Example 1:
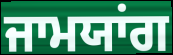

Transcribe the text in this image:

ਜਾਮਯਾਂਗ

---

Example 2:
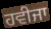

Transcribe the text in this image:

ਹਵੀਜਾ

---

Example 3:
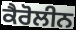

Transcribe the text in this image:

ਕੈਰੋਲੀਨ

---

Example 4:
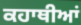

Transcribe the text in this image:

ਕਹਾਥੀਆਂ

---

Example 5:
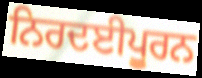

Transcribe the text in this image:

ਨਿਰਦਈਪੂਰਨ